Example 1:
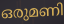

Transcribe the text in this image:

ഒരുമണി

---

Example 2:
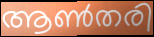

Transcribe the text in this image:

ആൺതരി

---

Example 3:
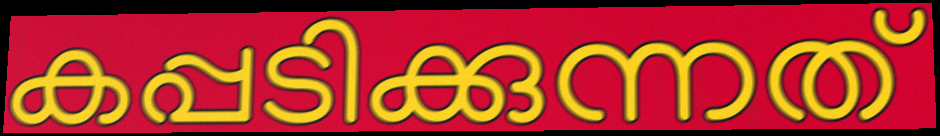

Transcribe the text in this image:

കപ്പടിക്കുന്നത്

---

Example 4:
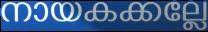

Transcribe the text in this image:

നായകക്കല്ലേ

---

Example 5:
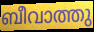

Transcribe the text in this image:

ബീവാത്തു